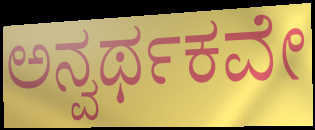
ಅನ್ವರ್ಥಕವೇ